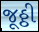
જૂઠ્ઠી